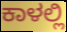
ಕಾಳಲ್ಲಿ